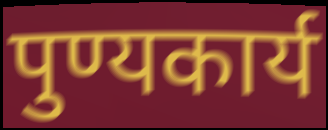
पुण्यकार्य